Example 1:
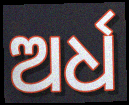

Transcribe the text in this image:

ଅର୍ଧ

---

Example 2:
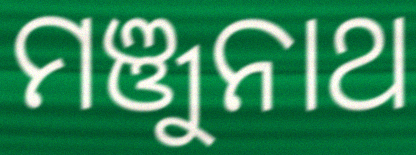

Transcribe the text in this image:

ମଞ୍ଜୁନାଥ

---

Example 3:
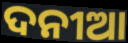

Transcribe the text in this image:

ଦନୀଆ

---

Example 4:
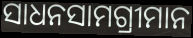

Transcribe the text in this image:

ସାଧନସାମଗ୍ରୀମାନ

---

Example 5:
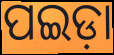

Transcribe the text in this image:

ପଇଡ଼ା